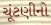
ચૂંટણીનો